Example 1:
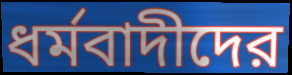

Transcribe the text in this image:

ধর্মবাদীদের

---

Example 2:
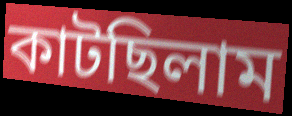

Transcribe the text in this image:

কাটছিলাম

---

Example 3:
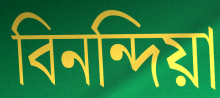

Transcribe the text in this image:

বিনন্দিয়া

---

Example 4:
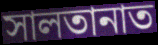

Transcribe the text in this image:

সালতানাত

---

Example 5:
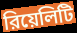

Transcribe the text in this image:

রিয়েলিটি